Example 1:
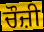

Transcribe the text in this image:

ਚੌਜ਼ੀ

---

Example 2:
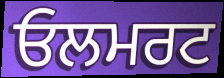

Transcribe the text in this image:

ਓਲਮਰਟ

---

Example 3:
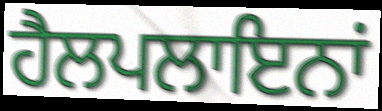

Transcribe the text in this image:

ਹੈਲਪਲਾਇਨਾਂ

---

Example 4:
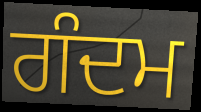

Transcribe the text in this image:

ਗੰਦਮ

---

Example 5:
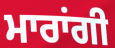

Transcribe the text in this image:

ਮਾਰਾਂਗੀ